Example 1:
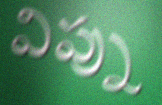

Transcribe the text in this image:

విప్ను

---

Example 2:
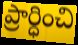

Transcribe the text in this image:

ప్రార్ధించి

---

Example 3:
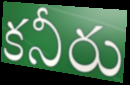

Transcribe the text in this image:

కనీరు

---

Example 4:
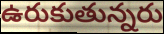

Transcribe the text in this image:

ఉరుకుతున్నరు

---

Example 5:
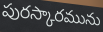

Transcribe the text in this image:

పురస్కారమును